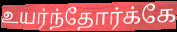
உயர்ந்தோர்க்கே